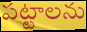
పట్టాలను